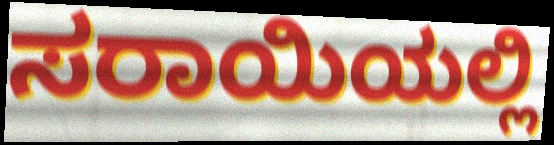
ಸರಾಯಿಯಲ್ಲಿ